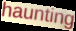
haunting